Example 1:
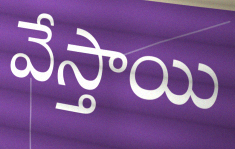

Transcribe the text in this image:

వేస్తాయి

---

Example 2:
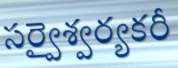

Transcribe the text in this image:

సర్వైశ్వర్యకరీ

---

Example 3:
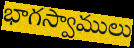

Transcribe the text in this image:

భాగస్వాములు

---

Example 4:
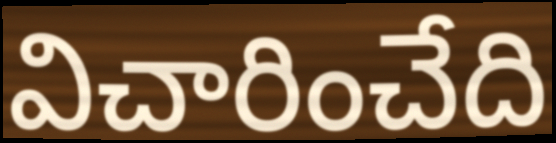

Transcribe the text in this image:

విచారించేది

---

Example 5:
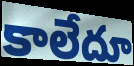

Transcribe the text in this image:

కాలేదూ